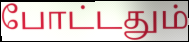
போட்டதும்